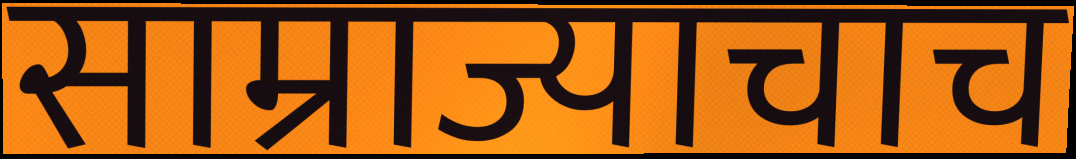
साम्राज्याचाच